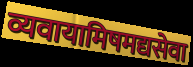
व्यवायामिषमद्यसेवा